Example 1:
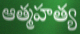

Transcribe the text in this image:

ఆత్మహత్య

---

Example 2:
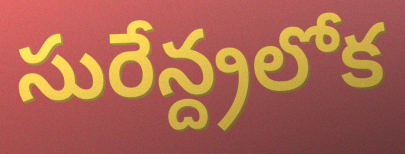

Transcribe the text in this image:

సురేన్ద్రలోక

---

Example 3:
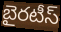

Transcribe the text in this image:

బైరటీస్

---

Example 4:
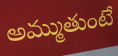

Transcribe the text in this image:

అమ్ముతుంటే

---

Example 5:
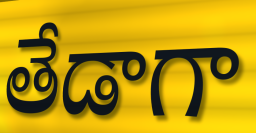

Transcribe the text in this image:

తేడాగా